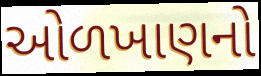
ઓળખાણનો